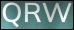
QRW